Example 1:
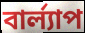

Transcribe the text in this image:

বার্ল্যাপ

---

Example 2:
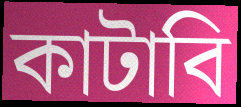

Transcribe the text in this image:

কাটাবি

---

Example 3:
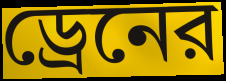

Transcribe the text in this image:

ড্রেনের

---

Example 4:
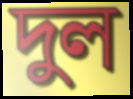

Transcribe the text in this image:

দুল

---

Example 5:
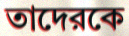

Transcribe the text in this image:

তাদেরকে